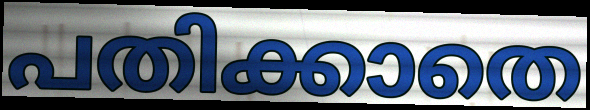
പതിക്കാതെ